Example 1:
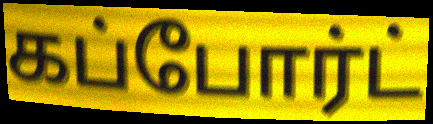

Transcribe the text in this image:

கப்போர்ட்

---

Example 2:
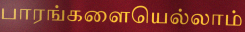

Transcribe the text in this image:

பாரங்களையெல்லாம்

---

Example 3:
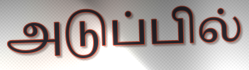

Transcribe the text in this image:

அடுப்பில்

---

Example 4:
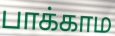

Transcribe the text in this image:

பாக்காம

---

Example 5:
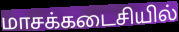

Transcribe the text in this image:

மாசக்கடைசியில்